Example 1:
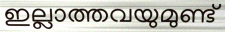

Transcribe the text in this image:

ഇല്ലാത്തവയുമുണ്ട്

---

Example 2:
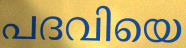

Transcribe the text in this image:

പദവിയെ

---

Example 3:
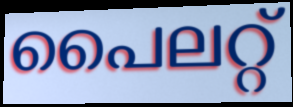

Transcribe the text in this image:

പൈലറ്റ്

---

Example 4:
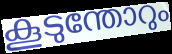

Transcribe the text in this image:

കൂടുന്തോറും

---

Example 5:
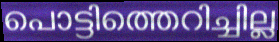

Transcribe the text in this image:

പൊട്ടിത്തെറിച്ചില്ല